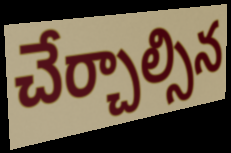
చేర్చాల్సిన